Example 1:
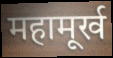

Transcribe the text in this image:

महामूर्ख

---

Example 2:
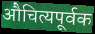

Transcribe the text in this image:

औचित्यपूर्वक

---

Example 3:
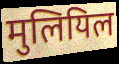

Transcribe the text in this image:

मुलियिल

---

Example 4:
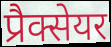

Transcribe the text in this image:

प्रैक्सेयर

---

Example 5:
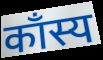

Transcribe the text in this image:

काँस्य